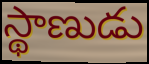
స్థాణుడు